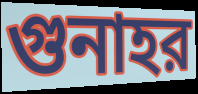
গুনাহর